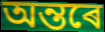
অন্তৰে